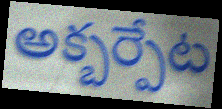
అక్బర్పేట